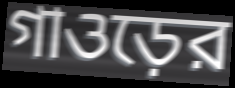
গাওড়ের